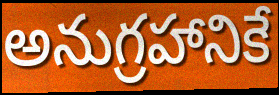
అనుగ్రహానికే